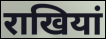
राखियां